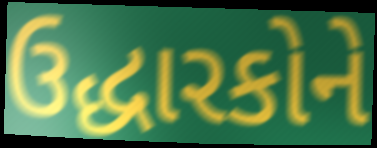
ઉદ્ધારકોને